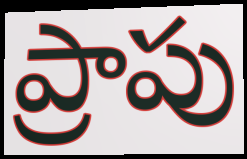
ప్రాపు